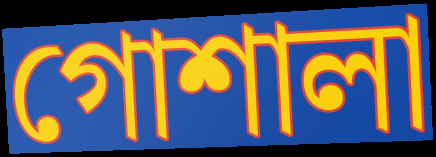
গোশালা